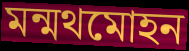
মন্মথমোহন